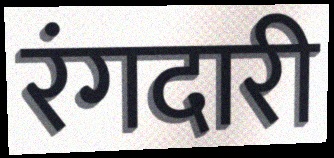
रंगदारी